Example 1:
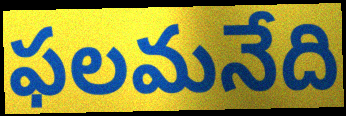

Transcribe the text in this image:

ఫలమనేది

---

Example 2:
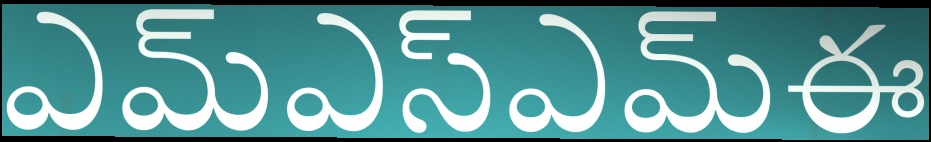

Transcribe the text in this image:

ఎమ్ఎస్ఎమ్ఈ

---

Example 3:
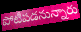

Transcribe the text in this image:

పోటీపడనున్నారు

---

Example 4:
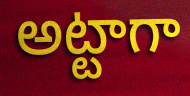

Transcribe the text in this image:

అట్టాగా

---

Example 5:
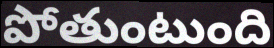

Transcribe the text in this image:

పోతుంటుంది